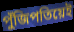
পুঁজিপতিয়েই